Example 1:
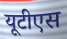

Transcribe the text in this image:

यूटीएस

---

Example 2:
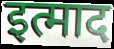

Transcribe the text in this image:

इत्माद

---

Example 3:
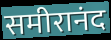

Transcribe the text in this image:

समीरानंद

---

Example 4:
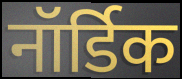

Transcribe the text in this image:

नॉर्डिक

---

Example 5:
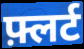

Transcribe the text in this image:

फ़्लर्ट